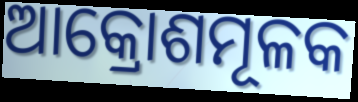
ଆକ୍ରୋଶମୂଳକ